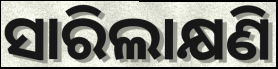
ସାରିଲାକ୍ଷଣି